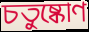
চতুষ্কোণ